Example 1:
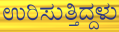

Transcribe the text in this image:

ಉರಿಸುತ್ತಿದ್ದಳು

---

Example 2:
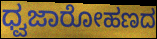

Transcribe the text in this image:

ಧ್ವಜಾರೋಹಣದ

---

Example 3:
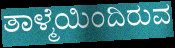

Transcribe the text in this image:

ತಾಳ್ಮೆಯಿಂದಿರುವ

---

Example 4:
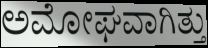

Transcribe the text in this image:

ಅಮೋಘವಾಗಿತ್ತು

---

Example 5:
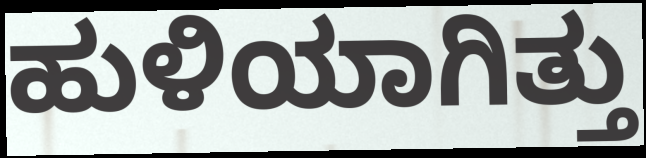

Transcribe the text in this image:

ಹುಳಿಯಾಗಿತ್ತು